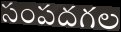
సంపదగల